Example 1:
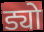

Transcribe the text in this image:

ड्यो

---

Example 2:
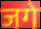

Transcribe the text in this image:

जगे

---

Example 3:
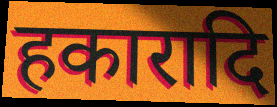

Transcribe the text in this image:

हकारादि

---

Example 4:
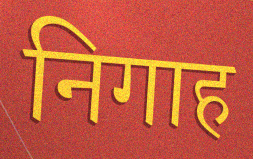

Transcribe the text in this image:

निगाह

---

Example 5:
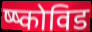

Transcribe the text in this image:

ष्ष्कोविड